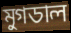
মুগডাল